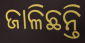
ଜାଳିଛନ୍ତି